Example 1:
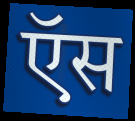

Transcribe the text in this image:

ऍस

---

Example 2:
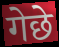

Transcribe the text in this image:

गेछे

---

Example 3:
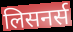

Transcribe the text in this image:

लिसनर्स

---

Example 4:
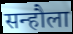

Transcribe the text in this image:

सन्हौला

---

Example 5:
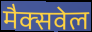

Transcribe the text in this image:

मैक्‍सवेल